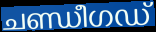
ചണ്ഡീഗഡ്